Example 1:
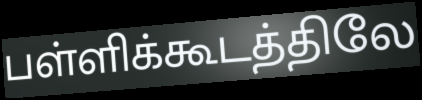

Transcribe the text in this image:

பள்ளிக்கூடத்திலே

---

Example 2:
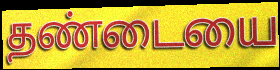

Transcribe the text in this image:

தண்டையை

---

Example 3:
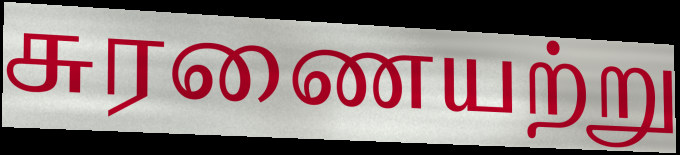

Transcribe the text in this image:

சுரணையற்று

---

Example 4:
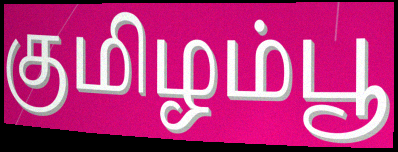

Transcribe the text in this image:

குமிழம்பூ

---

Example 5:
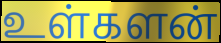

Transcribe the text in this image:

உள்களன்